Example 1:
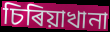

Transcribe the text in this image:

চিৰিয়াখানা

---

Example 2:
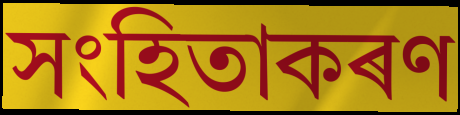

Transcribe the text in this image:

সংহিতাকৰণ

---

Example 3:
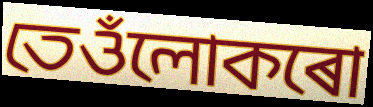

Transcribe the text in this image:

তেওঁলোকৰো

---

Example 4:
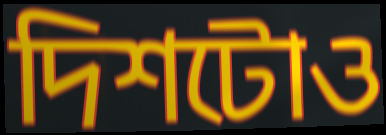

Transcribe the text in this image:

দিশটোও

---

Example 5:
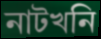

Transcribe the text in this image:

নাটখনি